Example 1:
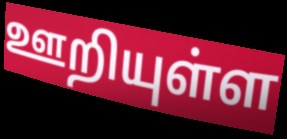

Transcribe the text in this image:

ஊறியுள்ள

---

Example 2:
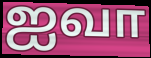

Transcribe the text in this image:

ஐவா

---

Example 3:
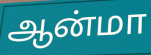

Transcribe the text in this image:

ஆன்மா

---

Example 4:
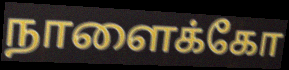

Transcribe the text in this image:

நாளைக்கோ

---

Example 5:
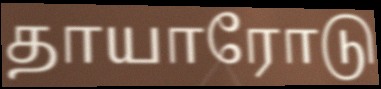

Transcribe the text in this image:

தாயாரோடு